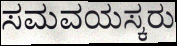
ಸಮವಯಸ್ಕರು